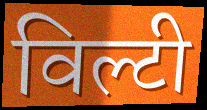
विल्टी